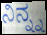
ನಿನ್ನ್ನ